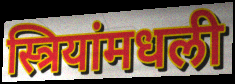
स्त्रियांमधली